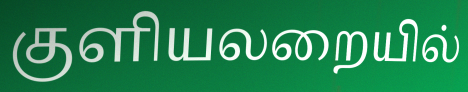
குளியலறையில்